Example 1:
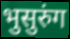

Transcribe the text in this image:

भुसुरुंग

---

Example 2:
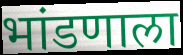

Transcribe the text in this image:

भांडणाला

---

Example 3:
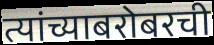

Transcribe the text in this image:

त्यांच्याबरोबरची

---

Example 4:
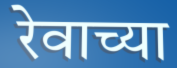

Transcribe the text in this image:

रेवाच्या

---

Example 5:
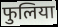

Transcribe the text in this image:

फुलिया